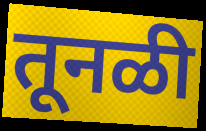
तूनळी